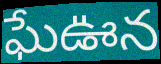
ఘేఊన